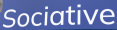
Sociative